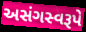
અસંગસ્વરૂપે